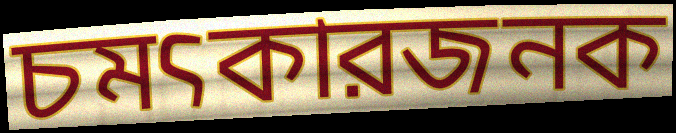
চমৎকারজনক